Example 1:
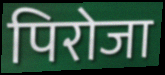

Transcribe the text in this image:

पिरोजा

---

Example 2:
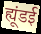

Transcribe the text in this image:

ह्यूंडई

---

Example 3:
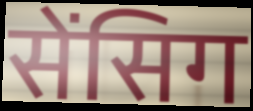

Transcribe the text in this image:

सेंसिग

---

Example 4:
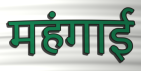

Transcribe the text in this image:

महंगाई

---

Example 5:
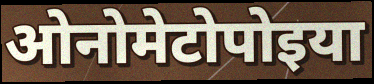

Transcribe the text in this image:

ओनोमेटोपोइया